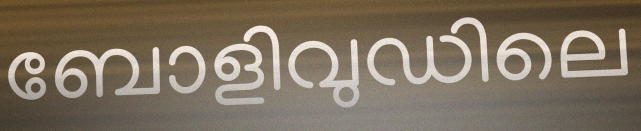
ബോളിവുഡിലെ